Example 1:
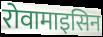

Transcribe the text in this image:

रोवामाइसिन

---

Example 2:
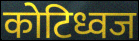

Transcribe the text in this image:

कोटिध्वज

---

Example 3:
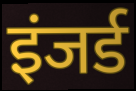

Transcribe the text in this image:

इंजर्ड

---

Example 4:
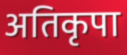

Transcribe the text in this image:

अतिकृपा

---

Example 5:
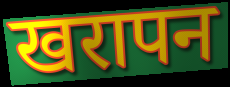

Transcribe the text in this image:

खरापन